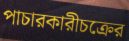
পাচারকারীচক্রের